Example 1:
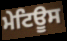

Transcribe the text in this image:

ਮੇਟਿਊਸ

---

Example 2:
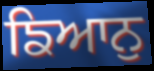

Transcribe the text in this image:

ਙਿਆਨੁ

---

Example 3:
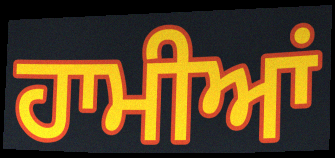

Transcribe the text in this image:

ਹਾਮੀਆਂ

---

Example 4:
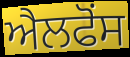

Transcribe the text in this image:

ਐਲਫੋਂਸ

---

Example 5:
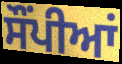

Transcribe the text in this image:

ਸੌਂਪੀਆਂ